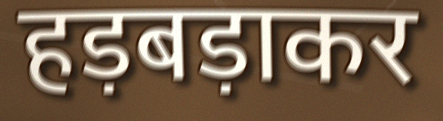
हड़बड़ाकर